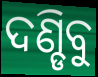
ଦଣ୍ଡିବୁ